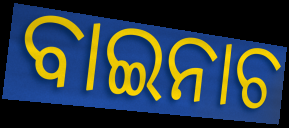
ବାଇନାଚ